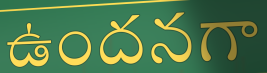
ఉందనగా